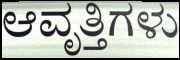
ಆವೃತ್ತಿಗಳು